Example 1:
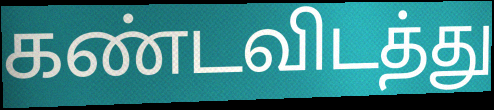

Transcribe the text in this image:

கண்டவிடத்து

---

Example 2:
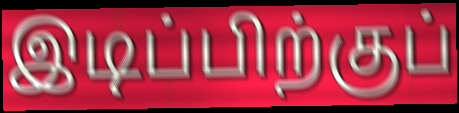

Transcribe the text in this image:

இடிப்பிற்குப்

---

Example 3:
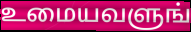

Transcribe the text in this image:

உமையவளுங்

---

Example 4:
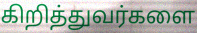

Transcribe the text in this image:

கிறித்துவர்களை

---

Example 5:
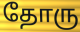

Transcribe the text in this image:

தோரு